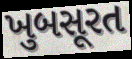
ખુબસૂરત